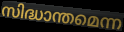
സിദ്ധാന്തമെന്ന